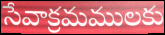
సేవాక్రమములకు